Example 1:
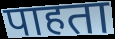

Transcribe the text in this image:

पाहता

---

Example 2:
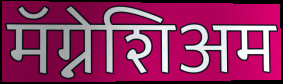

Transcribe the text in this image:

मॅग्नेशिअम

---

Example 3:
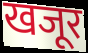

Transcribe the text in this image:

खजूर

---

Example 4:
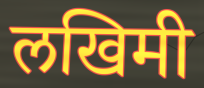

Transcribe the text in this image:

लखिमी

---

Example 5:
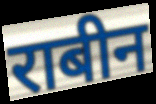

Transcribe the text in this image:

राबीन